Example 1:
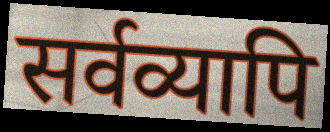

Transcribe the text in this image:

सर्वव्यापि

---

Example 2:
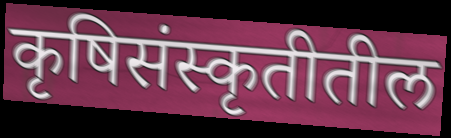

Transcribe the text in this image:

कृषिसंस्कृतीतील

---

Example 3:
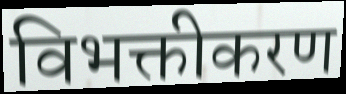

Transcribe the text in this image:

विभक्तीकरण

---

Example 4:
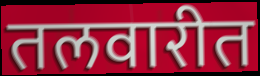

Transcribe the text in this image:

तलवारीत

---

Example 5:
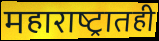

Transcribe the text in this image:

महाराष्ट्रातही